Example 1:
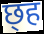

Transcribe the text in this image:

छ्ह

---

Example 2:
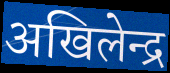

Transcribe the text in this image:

अखिलेन्द्र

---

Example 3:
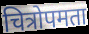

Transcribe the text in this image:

चित्रोपमता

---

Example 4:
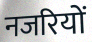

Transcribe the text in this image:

नजरियों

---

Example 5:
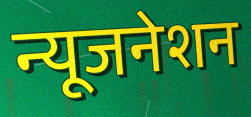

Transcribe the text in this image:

न्यूजनेशन